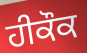
ਹੀਕੌਕ